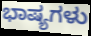
ಭಾಷ್ಯಗಳು